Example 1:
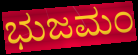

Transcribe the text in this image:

ಭುಜಮಂ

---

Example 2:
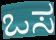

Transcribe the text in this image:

ಒಸ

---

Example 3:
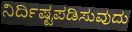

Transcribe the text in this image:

ನಿರ್ದಿಷ್ಟಪಡಿಸುವುದು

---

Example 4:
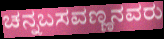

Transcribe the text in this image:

ಚನ್ನಬಸವಣ್ಣನವರು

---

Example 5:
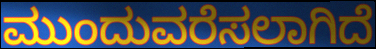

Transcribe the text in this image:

ಮುಂದುವರೆಸಲಾಗಿದೆ